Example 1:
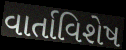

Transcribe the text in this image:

વાર્તાવિશેષ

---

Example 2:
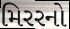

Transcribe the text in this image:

મિરરનો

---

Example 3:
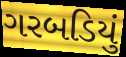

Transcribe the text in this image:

ગરબડિયું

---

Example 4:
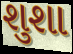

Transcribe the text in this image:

શુશા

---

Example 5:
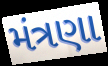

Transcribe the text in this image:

મંત્રણા